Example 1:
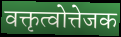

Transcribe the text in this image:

वक्तृत्वोत्तेजक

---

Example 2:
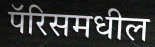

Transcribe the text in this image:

पॅरिसमधील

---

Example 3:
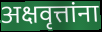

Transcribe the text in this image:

अक्षवृत्तांना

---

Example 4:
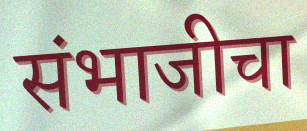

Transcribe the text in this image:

संभाजीचा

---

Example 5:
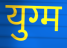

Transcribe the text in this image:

युग्म